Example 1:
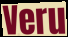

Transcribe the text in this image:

Veru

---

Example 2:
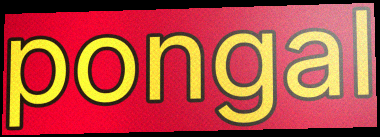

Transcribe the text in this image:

pongal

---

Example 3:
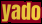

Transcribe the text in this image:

yado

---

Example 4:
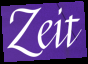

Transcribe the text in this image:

Zeit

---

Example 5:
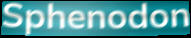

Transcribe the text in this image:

Sphenodon